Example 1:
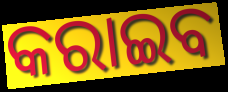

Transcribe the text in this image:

କରାଇବ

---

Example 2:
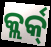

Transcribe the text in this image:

କ୍ଲର୍କ୍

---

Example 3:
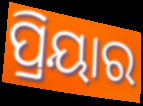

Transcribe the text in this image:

ପ୍ରିୟାର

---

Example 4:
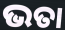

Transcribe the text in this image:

ଭତା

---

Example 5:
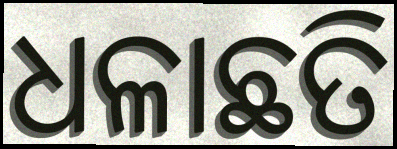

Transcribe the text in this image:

ଧଳାଛତି